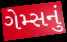
ગેમ્સનું